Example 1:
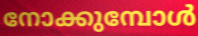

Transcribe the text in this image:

നോക്കുമ്പോൾ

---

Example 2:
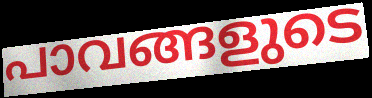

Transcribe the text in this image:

പാവങ്ങളുടെ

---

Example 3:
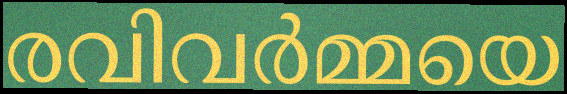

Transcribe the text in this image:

രവിവർമ്മയെ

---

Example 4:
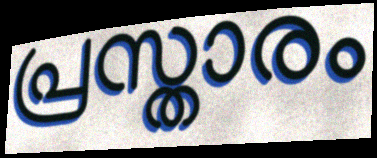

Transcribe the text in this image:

പ്രസ്താരം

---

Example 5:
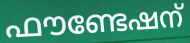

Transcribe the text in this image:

ഫൗണ്ടേഷന്